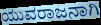
ಯುವರಾಜನಾಗಿ